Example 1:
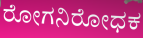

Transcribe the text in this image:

ರೋಗನಿರೋಧಕ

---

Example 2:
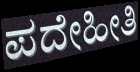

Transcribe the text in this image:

ಪದೇಹೀತಿ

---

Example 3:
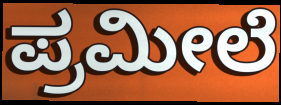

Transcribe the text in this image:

ಪ್ರಮೀಲೆ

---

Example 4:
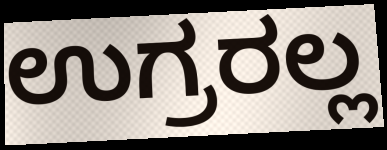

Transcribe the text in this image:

ಉಗ್ರರಲ್ಲ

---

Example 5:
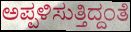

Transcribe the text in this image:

ಅಪ್ಪಳಿಸುತ್ತಿದ್ದಂತೆ